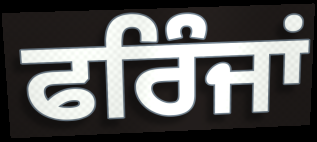
ਫਰਿੰਜਾਂ